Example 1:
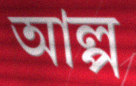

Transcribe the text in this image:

আল্প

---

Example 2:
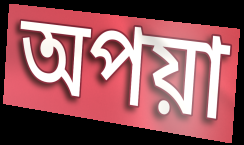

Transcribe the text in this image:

অপয়া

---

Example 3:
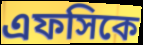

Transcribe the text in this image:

এফসিকে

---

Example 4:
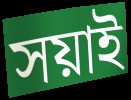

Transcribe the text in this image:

সয়াই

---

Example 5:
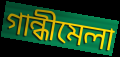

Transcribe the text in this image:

গান্ধীমেলা